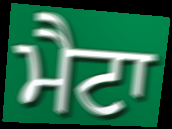
ਮੈਟਾ